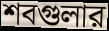
শবগুলার